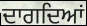
ਦਾਗਦਿਆਂ